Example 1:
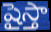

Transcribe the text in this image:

షైస్తా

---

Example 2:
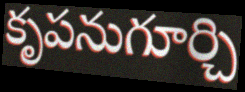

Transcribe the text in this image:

కృపనుగూర్చి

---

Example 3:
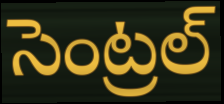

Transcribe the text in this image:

సెంట్రల్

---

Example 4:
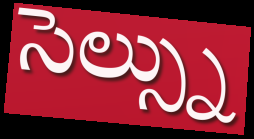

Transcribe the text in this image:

సెల్స్ను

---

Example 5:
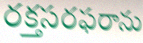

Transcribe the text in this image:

రక్తసరఫరాను